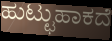
ಹುಟ್ಟುಹಾಕದೆ